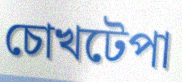
চোখটেপা